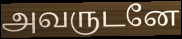
அவருடனே